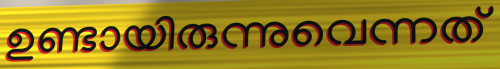
ഉണ്ടായിരുന്നുവെന്നത്